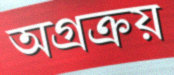
অগ্রক্রয়